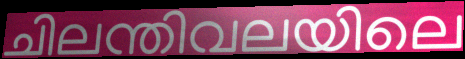
ചിലന്തിവലയിലെ